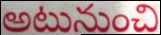
అటునుంచి